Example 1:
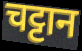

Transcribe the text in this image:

चट्टान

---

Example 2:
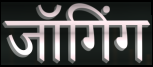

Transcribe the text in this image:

जॉगिंग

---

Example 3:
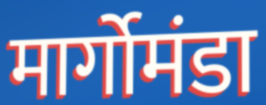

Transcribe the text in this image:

मार्गोमंडा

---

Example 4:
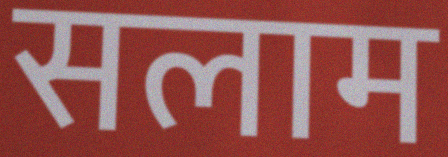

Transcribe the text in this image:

सलाम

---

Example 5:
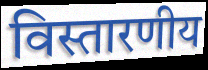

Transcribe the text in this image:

विस्तारणीय